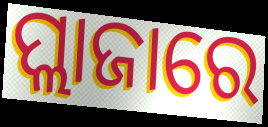
ପ୍ଲାଜାରେ